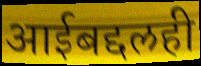
आईबद्दलही